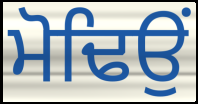
ਮੋਢਿਉਂ